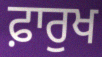
ਫ਼ਾਰੁਖ